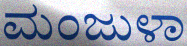
ಮಂಜುಳಾ